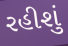
રહીશું